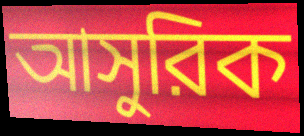
আসুরিক